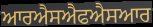
ਆਰਐਸਐਫਐਸਆਰ